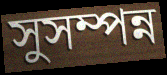
সুসম্পন্ন